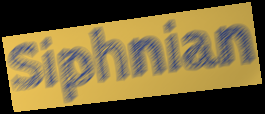
Siphnian